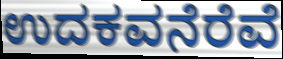
ಉದಕವನೆರೆವೆ